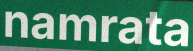
namrata